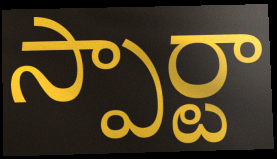
స్పార్టా